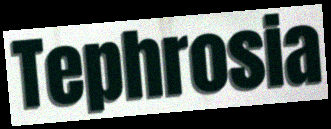
Tephrosia